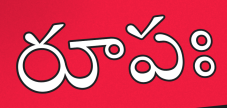
రూపః